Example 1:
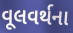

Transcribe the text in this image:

વૂલવર્થના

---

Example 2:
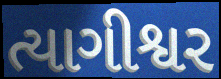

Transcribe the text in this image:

ત્યાગીશ્વર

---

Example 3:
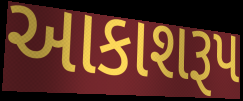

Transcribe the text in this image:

આકાશરૂપ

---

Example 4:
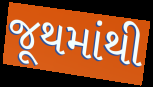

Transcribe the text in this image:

જૂથમાંથી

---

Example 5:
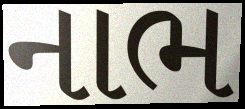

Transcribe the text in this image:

નાભ